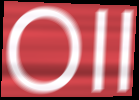
Oll